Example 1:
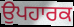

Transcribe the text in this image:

ਉਪਹਾਰਕ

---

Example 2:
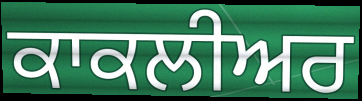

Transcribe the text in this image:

ਕਾਕਲੀਅਰ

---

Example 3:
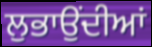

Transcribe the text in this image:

ਲੁਭਾਉਂਦੀਆਂ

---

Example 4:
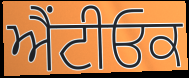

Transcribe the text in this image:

ਐਂਟੀਓਕ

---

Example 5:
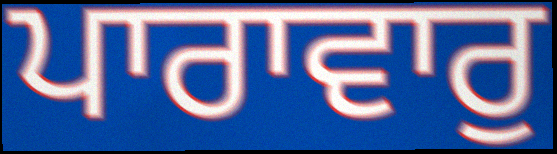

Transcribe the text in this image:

ਪਾਰਾਵਾਰੁ